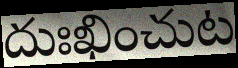
దుఃఖించుట